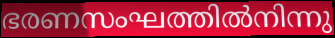
ഭരണസംഘത്തിൽനിന്നു